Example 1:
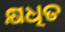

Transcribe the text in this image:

କ୍ଷଧିତ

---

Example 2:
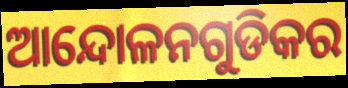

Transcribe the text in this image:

ଆନ୍ଦୋଳନଗୁଡିକର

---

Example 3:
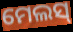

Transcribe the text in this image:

ମେଲସ୍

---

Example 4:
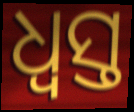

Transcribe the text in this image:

ଧ୍ବସ୍ତ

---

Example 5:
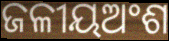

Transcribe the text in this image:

ଜଳୀୟଅଂଶ